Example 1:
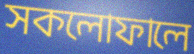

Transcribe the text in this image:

সকলোফালে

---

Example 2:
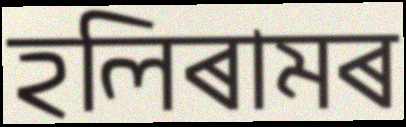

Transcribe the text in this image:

হলিৰামৰ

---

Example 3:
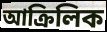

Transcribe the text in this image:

আক্ৰিলিক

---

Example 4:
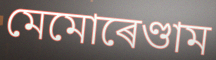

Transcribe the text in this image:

মেমোৰেণ্ডাম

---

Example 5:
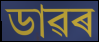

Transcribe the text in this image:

ডাৱৰ